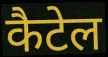
कैटेल